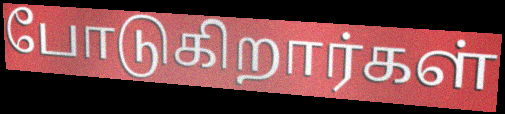
போடுகிறார்கள்